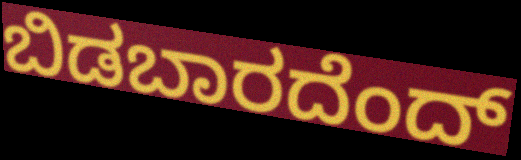
ಬಿಡಬಾರದೆಂದ್